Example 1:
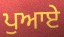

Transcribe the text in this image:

ਪੁਆਏ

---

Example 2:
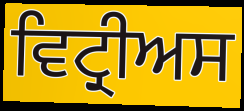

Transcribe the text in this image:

ਵਿਟ੍ਰੀਅਸ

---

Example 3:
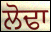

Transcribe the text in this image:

ਲੋਢਾ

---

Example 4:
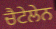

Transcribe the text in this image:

ਚੈਟੇਲੇਨ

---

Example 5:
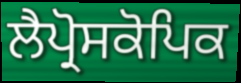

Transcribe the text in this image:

ਲੈਪ੍ਰੋਸਕੋਪਿਕ